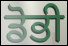
ਡੋਭੀ